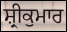
ਸ਼੍ਰੀਕੁਮਾਰ